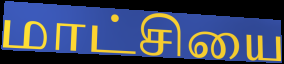
மாட்சியை